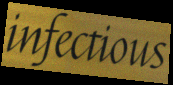
infectious